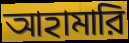
আহামারি